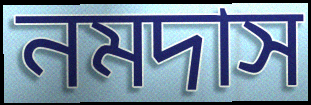
নমদাস